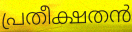
പ്രതീക്ഷതൻ